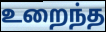
உறைந்த